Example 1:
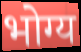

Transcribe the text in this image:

भोग्य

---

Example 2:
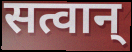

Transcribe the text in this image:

सत्वान्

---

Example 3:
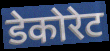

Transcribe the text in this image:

डेकोरेट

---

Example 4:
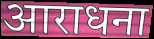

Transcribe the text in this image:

आराधना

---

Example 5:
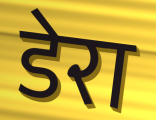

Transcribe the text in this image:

डेरा